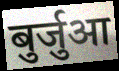
बुर्जुआ